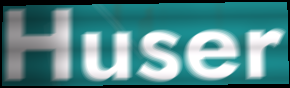
Huser